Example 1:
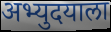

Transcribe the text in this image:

अभ्युदयाला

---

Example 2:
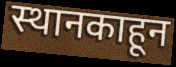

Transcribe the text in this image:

स्थानकाहून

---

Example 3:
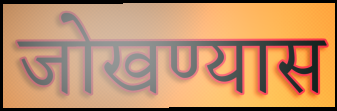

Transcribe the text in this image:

जोखण्यास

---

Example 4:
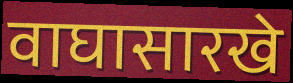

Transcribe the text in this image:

वाघासारखे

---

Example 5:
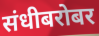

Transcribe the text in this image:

संधीबरोबर